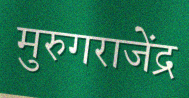
मुरुगराजेंद्र